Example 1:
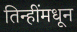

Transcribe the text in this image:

तिन्हींमधून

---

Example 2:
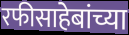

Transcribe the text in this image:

रफीसाहेबांच्या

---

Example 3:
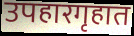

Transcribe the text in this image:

उपहारगृहात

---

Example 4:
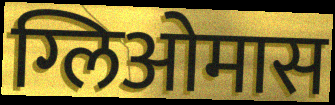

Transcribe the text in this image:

ग्लिओमास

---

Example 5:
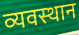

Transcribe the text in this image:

व्यवस्थान